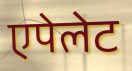
एपेलेट